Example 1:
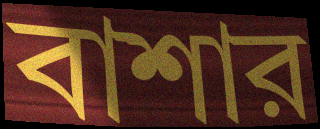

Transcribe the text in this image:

বাশার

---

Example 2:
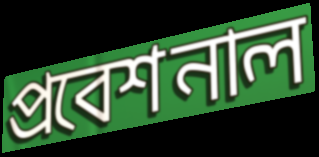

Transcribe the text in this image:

প্রবেশনাল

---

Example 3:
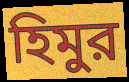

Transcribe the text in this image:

হিমুর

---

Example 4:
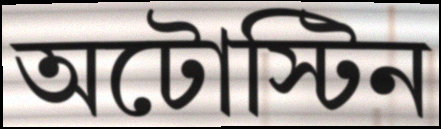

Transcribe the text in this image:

অটোস্টিন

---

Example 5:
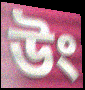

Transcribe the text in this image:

উং